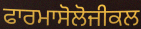
ਫਾਰਮਾਸੋਲੋਜੀਕਲ